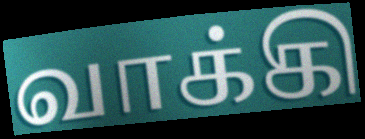
வாக்கி